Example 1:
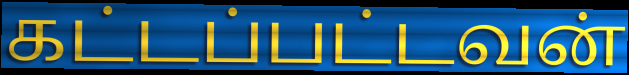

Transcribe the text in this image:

கட்டப்பட்டவன்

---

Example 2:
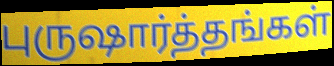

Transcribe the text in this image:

புருஷார்த்தங்கள்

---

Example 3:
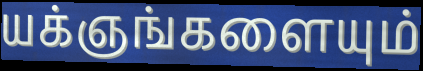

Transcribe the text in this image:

யக்ஞங்களையும்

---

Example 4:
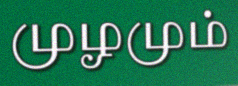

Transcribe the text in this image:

முழமும்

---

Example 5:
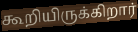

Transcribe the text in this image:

கூறியிருக்கிறார்